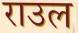
राउल